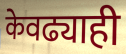
केवढ्याही